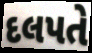
દલપતે